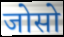
जोसो